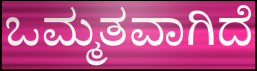
ಒಮ್ಮತವಾಗಿದೆ